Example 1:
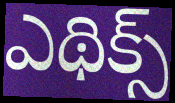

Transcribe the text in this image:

ఎథిక్స్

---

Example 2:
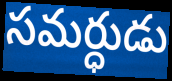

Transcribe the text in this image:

సమర్ధుడు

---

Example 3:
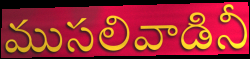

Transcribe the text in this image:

ముసలివాడినీ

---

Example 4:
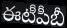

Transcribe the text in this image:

ఈటీపీబీ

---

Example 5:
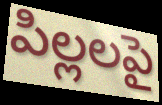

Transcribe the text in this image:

పిల్లలపై